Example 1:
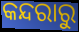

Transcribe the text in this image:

କନ୍ଦରାରୁ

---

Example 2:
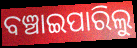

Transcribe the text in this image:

ବଞ୍ଚାଇପାରିଲୁ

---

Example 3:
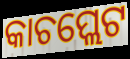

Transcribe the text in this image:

କାଚପ୍ଲେଟ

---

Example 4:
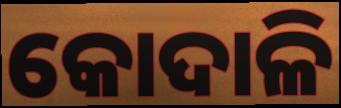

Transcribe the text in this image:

କୋଦାଳି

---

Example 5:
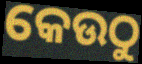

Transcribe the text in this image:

କେଉଠୁ